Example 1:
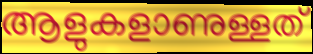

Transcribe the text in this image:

ആളുകളാണുള്ളത്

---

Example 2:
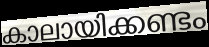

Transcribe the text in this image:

കാലായിക്കണ്ടം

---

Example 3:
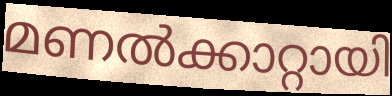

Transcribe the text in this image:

മണൽക്കാറ്റായി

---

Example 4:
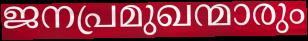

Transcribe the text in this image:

ജനപ്രമുഖന്മാരും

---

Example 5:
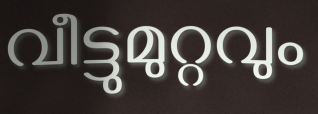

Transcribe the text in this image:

വീട്ടുമുറ്റവും